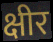
क्षीर